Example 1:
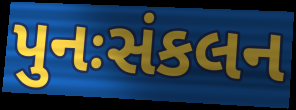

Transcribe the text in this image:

પુનઃસંકલન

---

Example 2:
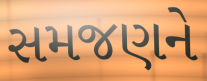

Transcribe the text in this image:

સમજણને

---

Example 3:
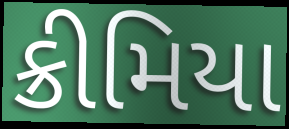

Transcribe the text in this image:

ક્રીમિયા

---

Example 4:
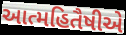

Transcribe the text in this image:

આત્મહિતૈષીએ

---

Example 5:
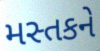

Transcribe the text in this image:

મસ્તકને